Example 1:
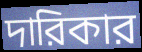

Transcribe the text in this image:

দারিকার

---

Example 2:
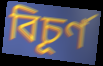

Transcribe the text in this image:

বিচূর্ণ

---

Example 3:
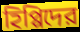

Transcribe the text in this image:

হিপ্পিদের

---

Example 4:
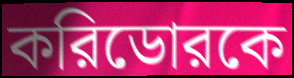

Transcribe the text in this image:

করিডোরকে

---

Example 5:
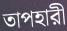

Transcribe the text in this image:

তাপহারী